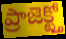
ప్రాజెక్ట్తో